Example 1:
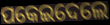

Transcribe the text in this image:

ପକେଇଦେଲେ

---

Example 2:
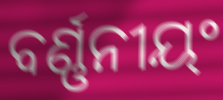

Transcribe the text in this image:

ବର୍ଣ୍ଣନୀୟଂ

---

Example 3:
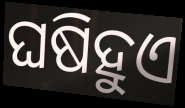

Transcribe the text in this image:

ଘଷିହୁଏ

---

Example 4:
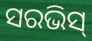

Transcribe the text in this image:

ସରଭିସ୍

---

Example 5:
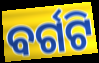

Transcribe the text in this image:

ବର୍ଗଟି